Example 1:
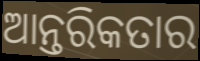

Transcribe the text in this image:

ଆନ୍ତରିକତାର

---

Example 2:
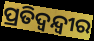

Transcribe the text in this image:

ପ୍ରତିଦ୍ବନ୍ଦ୍ବୀର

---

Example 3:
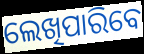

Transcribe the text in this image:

ଲେଖିପାରିବେ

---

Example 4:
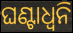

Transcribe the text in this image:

ଘଣ୍ଟାଧ୍ୱନି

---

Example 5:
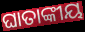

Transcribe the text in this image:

ଘାତାଙ୍କୀୟ